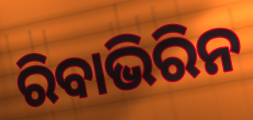
ରିବାଭିରିନ